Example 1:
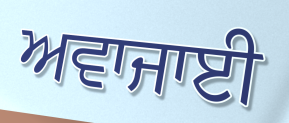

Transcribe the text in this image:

ਅਵਾਜਾਈ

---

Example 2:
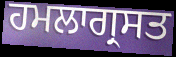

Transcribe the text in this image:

ਹਮਲਾਗ੍ਰਸਤ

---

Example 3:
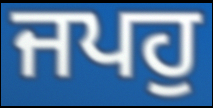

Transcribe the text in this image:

ਜਪਹੁ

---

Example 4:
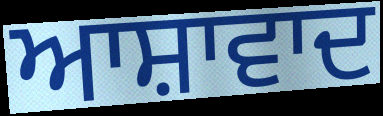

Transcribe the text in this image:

ਆਸ਼ਾਵਾਦ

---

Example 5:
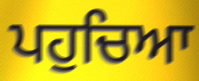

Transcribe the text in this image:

ਪਹੁਚਿਆ